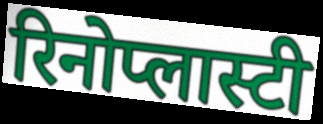
रिनोप्लास्टी